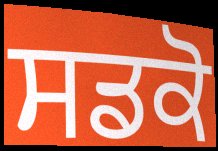
ਸਡਕੋ